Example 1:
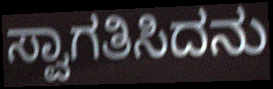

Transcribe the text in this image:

ಸ್ವಾಗತಿಸಿದನು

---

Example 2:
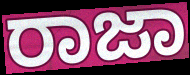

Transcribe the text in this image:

ರಾಜಾ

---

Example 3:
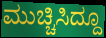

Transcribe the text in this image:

ಮುಚ್ಚಿಸಿದ್ದೂ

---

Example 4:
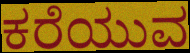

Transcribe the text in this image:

ಕರೆಯುವ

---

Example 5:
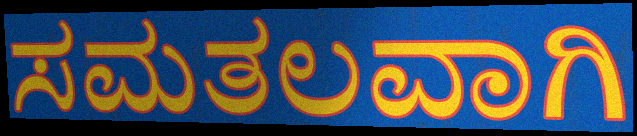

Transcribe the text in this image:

ಸಮತಲವಾಗಿ